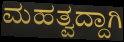
ಮಹತ್ವದ್ದಾಗಿ